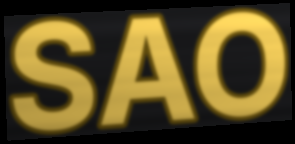
SAO